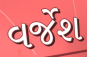
વર્જેશ